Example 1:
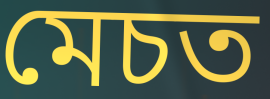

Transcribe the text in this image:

মেচত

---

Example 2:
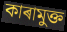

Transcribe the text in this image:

কাৰামুক্ত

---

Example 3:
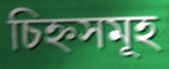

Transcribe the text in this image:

চিহ্নসমূহ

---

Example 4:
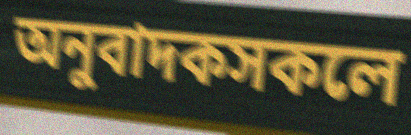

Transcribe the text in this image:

অনুবাদকসকলে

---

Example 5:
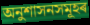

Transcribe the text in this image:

অনুশাসনসমূহৰ